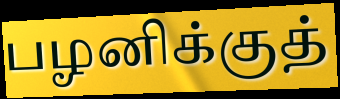
பழனிக்குத்